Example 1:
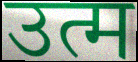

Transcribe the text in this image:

उत्म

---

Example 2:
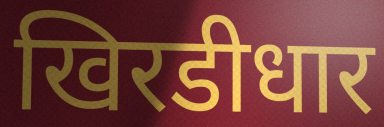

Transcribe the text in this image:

खिरडीधार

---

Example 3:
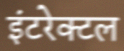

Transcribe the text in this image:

इंटरेक्टल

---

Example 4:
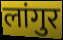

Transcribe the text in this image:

लांगुर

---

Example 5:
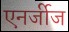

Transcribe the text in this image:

एनर्जीज